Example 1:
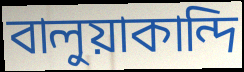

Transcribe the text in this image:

বালুয়াকান্দি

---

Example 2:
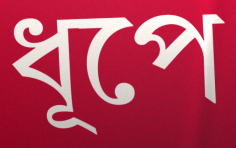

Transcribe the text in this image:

ধূপে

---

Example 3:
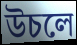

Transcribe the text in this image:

উচলে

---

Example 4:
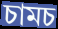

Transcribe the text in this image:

চামচ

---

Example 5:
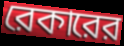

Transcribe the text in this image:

রেকারের